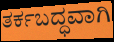
ತರ್ಕಬದ್ಧವಾಗಿ